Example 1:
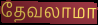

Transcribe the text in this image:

தேவலாமா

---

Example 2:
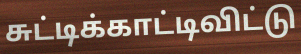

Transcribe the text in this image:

சுட்டிக்காட்டிவிட்டு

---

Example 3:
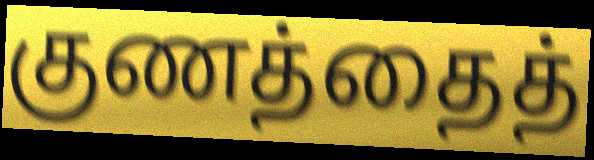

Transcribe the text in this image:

குணத்தைத்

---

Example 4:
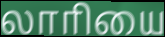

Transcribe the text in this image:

லாரியை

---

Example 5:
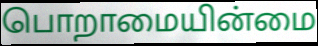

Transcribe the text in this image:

பொறாமையின்மை